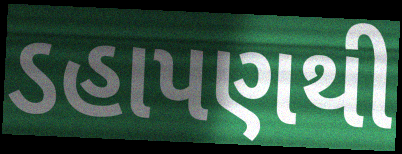
ડહાપણથી